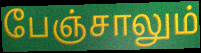
பேஞ்சாலும்